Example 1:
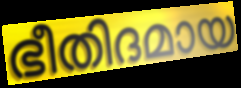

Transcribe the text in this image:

ഭീതിദമായ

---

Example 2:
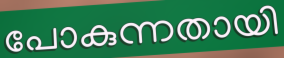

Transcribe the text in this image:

പോകുന്നതായി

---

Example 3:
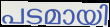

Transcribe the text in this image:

പടമായി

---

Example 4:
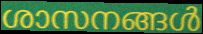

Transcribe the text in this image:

ശാസനങ്ങൾ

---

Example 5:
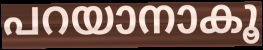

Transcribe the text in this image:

പറയാനാകൂ